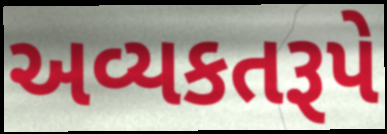
અવ્યકતરૂપે